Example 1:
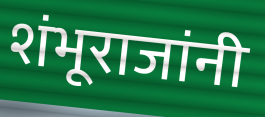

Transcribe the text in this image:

शंभूराजांनी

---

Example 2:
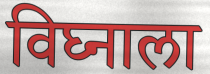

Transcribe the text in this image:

विघ्नाला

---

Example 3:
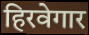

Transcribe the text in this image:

हिरवेगार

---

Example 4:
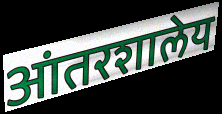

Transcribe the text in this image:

आंतरशालेय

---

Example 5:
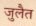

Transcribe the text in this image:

जुलैत